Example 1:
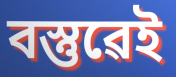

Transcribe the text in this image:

বস্তুৱেই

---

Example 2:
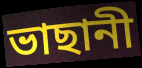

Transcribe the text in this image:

ভাছানী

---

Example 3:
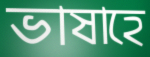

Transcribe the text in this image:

ভাষাহে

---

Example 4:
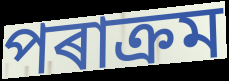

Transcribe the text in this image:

পৰাক্ৰম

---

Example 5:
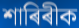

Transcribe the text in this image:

শাৰিৰীক